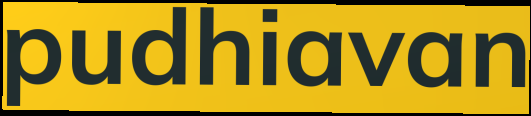
pudhiavan